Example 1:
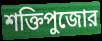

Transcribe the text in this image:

শক্তিপুজোর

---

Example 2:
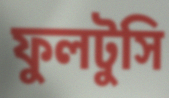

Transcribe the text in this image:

ফুলটুসি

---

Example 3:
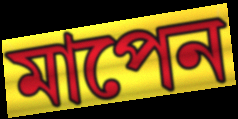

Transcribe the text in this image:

মাপেন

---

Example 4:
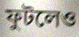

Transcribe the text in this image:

ফুটলেও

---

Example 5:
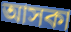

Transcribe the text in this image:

আসকা